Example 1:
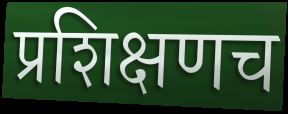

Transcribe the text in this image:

प्रशिक्षणच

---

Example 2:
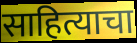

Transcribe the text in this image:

साहित्याचा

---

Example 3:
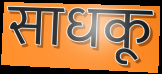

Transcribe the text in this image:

साधकू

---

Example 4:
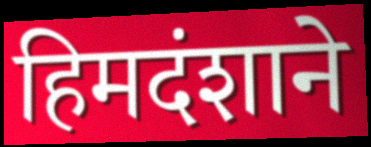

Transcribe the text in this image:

हिमदंशाने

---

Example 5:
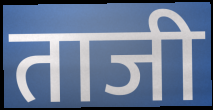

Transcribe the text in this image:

ताजी